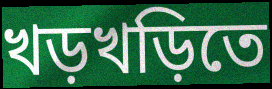
খড়খড়িতে